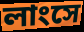
লাংসে